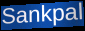
Sankpal